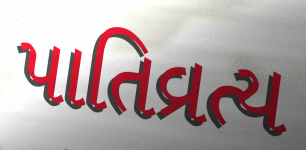
પાતિવ્રત્ય